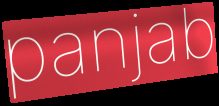
panjab